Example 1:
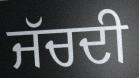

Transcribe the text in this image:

ਜੱਚਦੀ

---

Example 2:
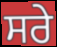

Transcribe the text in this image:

ਸਰੇ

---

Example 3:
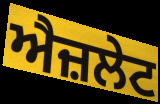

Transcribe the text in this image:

ਐਜ਼ਲੇਟ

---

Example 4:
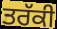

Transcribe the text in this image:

ਤਰੱਕੀ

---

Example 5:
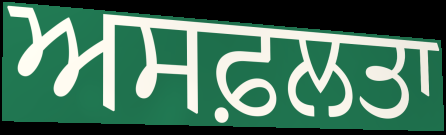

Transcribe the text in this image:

ਅਸਫ਼ਲਤਾ